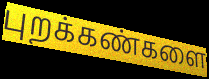
புறக்கண்களை